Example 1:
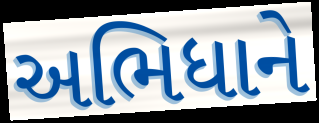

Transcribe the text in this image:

અભિધાને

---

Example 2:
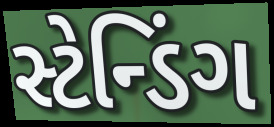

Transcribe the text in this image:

સ્ટેન્ડિંગ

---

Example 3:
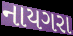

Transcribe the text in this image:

નાયગરા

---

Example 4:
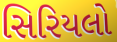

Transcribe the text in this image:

સિરિયલો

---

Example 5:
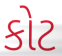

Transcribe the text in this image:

કોટ